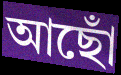
আছোঁ